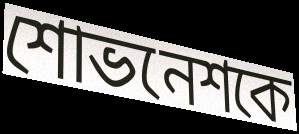
শোভনেশকে